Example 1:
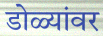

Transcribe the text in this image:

डोळ्यांवर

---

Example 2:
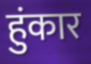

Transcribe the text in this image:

हुंकार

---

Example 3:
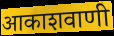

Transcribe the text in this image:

आकाशवाणी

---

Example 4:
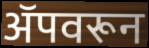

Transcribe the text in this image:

ॲपवरून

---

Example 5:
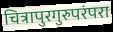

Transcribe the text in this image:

चित्रापुरगुरुपरंपरा